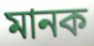
মানক